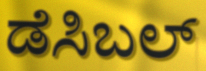
ಡೆಸಿಬಲ್